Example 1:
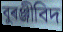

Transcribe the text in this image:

বুৰঞ্জীবিদ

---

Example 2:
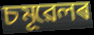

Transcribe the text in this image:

চমূৱেলৰ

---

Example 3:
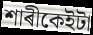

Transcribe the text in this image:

শাৰীকেইটা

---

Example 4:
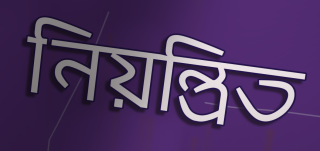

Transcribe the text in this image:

নিয়ন্ত্ৰিত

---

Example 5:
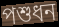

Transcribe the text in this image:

পশুধন